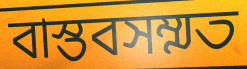
বাস্তবসম্মত